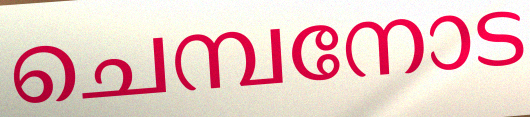
ചെമ്പനോട